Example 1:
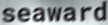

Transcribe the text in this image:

seaward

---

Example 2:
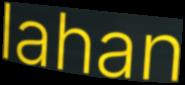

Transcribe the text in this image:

lahan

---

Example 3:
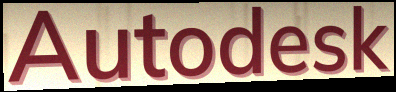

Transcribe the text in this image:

Autodesk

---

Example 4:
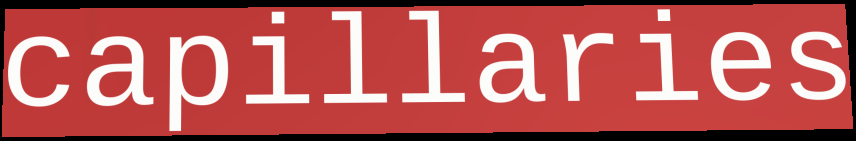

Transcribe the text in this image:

capillaries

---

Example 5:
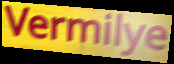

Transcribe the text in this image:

Vermilye